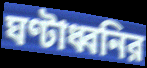
ঘণ্টাধ্বনির